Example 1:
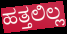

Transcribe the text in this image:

ಹತ್ತಲಿಲ್ಲ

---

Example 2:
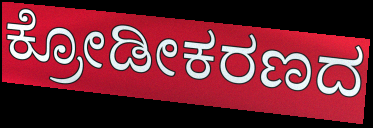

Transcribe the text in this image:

ಕ್ರೋಡೀಕರಣದ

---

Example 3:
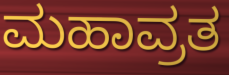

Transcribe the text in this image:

ಮಹಾವ್ರತ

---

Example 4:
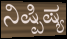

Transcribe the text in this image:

ನಿಷ್ಪಿಷ್ಯ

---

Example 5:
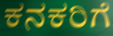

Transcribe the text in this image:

ಕನಕರಿಗೆ